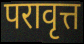
परावृत्त